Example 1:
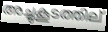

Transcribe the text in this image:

അച്ചുകൂടത്തില്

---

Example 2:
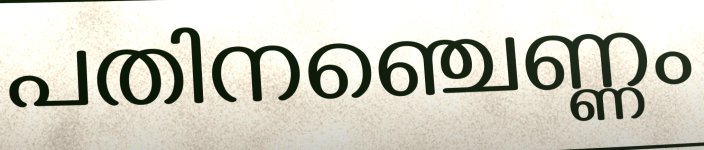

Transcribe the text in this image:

പതിനഞ്ചെണ്ണം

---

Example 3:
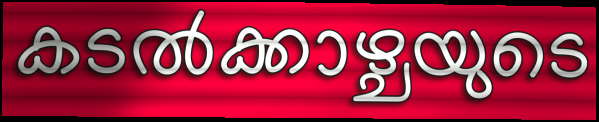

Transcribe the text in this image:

കടൽക്കാഴ്ചയുടെ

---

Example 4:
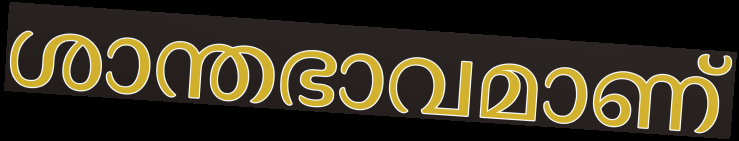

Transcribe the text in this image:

ശാന്തഭാവമാണ്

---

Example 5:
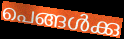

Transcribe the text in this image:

പെങ്ങൾക്കു